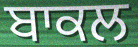
ਬਾਕਲ